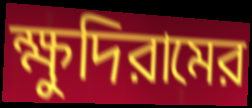
ক্ষুদিরামের